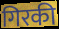
गिरकी